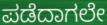
ಪಡೆದಾಗಲೇ